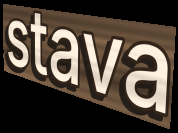
stava